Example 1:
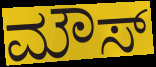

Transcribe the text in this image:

ಮೌಸ್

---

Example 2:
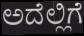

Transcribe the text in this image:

ಅದೆಲ್ಲಿಗೆ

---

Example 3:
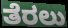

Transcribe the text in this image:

ತೆರಲು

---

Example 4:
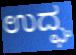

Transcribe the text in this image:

ಉದ್ಘ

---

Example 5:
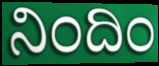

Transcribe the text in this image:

ನಿಂದಿಂ